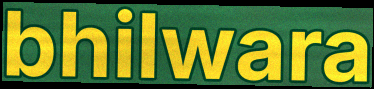
bhilwara